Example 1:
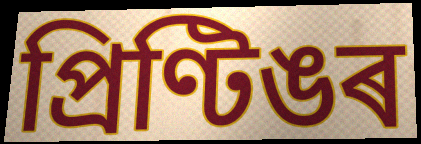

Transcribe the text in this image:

প্ৰিণ্টিঙৰ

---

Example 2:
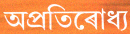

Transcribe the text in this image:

অপ্ৰতিৰোধ্য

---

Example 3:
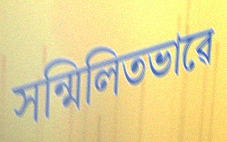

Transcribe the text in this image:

সন্মিলিতভাৱে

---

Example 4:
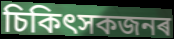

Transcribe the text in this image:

চিকিৎসকজনৰ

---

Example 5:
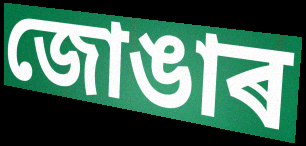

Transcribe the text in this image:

জোঙাৰ